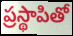
ప్రస్థాపితో